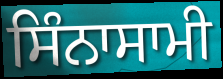
ਸਿੰਨਾਸਾਮੀ